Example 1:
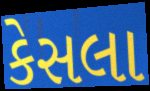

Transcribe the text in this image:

કેસલા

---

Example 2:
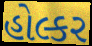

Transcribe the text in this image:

હોલ્કર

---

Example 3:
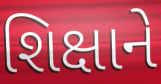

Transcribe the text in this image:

શિક્ષાને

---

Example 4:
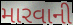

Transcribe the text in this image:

મારવાની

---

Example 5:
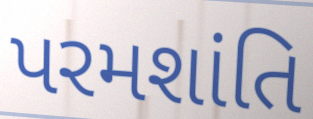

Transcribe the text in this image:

પરમશાંતિ